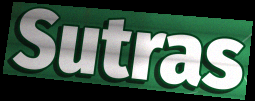
Sutras